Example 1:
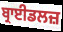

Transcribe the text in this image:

ਬ੍ਰਾਈਡਲਜ਼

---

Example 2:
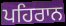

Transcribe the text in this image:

ਪਹਿਰਾਨ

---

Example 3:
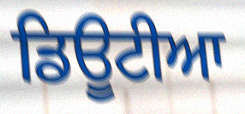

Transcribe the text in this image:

ਡਿਊਟੀਆ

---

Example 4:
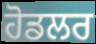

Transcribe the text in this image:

ਹੋਡਲਰ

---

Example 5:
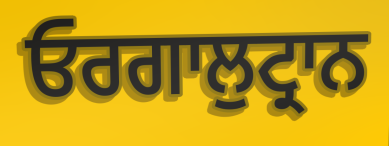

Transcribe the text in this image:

ਓਰਗਾਲੁਟ੍ਰਾਨ